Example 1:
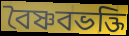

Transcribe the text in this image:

বৈষ্ণবভক্তি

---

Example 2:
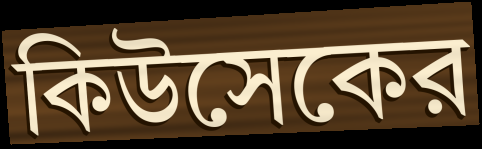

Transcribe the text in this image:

কিউসেকের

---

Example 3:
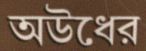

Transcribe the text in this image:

অউধের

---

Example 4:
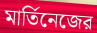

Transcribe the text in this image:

মার্তিনেজের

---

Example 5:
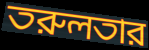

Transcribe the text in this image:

তরুলতার